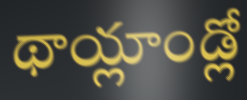
థాయ్లాండ్లో